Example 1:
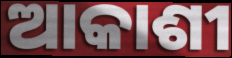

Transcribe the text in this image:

ଆକାଶୀ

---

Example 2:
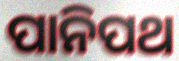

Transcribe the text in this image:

ପାନିପଥ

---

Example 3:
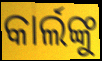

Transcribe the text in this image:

କାର୍ଲଙ୍କୁ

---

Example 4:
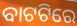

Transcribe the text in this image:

ବାଟଟିରେ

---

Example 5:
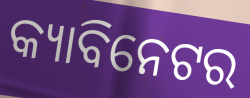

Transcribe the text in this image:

କ୍ୟାବିନେଟର